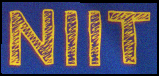
NIIT